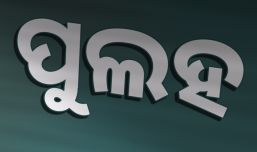
ପୁଲହ